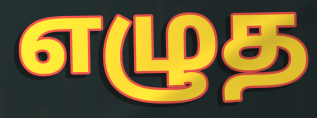
எழுத